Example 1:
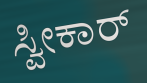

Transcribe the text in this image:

ಸ್ವೀಕಾರ್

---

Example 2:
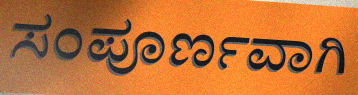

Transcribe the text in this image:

ಸಂಪೂರ್ಣವಾಗಿ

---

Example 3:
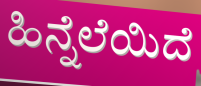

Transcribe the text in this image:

ಹಿನ್ನೆಲೆಯಿದೆ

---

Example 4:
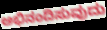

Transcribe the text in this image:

ಅಭಿನಂದಿಸುವುದು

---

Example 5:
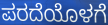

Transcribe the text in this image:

ಪರದೆಯೊಳಗೆ